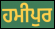
ਹਮੀਪੁਰ